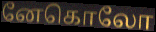
னேகொலோ